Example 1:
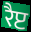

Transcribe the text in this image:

रैप्ट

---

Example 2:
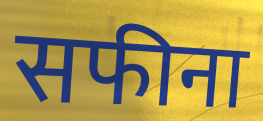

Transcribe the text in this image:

सफीना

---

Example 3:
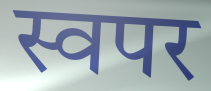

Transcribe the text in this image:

स्वपर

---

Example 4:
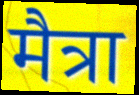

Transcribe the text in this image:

मैत्रा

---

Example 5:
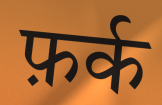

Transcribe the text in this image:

फ़र्क